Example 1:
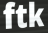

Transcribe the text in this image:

ftk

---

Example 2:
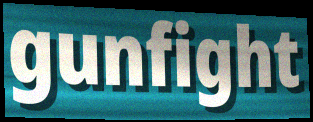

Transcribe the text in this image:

gunfight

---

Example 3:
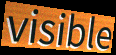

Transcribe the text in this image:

visible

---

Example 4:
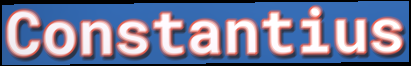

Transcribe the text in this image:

Constantius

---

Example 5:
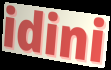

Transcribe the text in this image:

idini